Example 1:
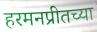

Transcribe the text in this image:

हरमनप्रीतच्या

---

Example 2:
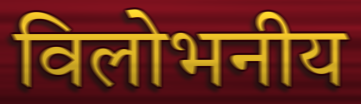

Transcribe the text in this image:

विलोभनीय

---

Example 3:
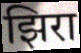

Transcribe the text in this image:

झिरा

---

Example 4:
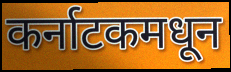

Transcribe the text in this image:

कर्नाटकमधून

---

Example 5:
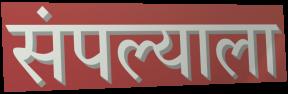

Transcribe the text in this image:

संपल्याला